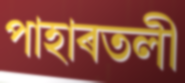
পাহাৰতলী